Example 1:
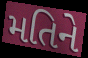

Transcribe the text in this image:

મતિને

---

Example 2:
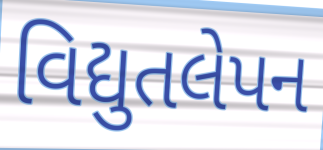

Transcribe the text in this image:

વિદ્યુતલેપન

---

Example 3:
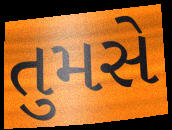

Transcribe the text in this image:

તુમસે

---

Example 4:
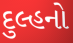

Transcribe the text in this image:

દુલ્હનો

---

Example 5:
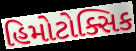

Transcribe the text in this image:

હિમોટોક્સિક